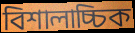
বিশালাচ্চিক